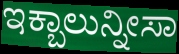
ಇಕ್ಬಾಲುನ್ನೀಸಾ